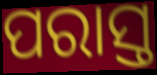
ପରାସ୍ତ